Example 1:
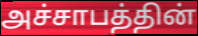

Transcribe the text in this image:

அச்சாபத்தின்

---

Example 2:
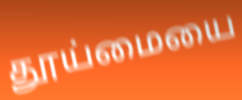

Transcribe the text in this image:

தூய்மையை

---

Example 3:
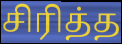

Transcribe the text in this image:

சிரித்த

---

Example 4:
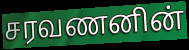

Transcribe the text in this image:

சரவணனின்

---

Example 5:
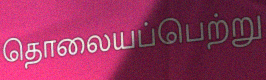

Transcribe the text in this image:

தொலையப்பெற்று